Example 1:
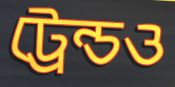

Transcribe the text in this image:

ট্রেন্ডও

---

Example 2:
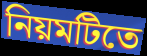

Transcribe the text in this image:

নিয়মটিতে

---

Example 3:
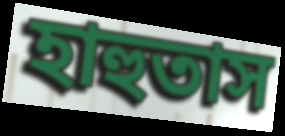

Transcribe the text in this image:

হাহুতাস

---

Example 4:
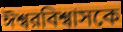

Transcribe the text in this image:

ঈশ্বরবিশ্বাসকে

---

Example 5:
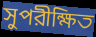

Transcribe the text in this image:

সুপরীক্ষিত